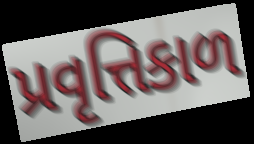
પ્રવૃત્તિકાળ